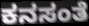
ಕನಸಂತೆ